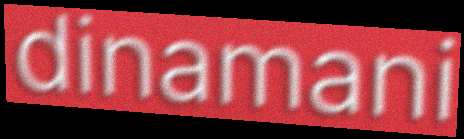
dinamani